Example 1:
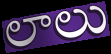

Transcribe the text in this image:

లాలు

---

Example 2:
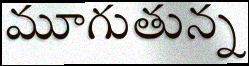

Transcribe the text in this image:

మూగుతున్న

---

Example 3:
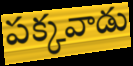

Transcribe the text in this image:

పక్కవాడు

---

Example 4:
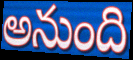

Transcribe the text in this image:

అనుంది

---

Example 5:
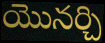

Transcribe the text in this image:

యొనర్చి